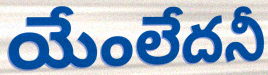
యేంలేదనీ